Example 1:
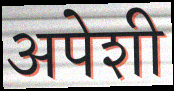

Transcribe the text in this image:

अपेशी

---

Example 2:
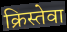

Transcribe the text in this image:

क्रिस्तेवा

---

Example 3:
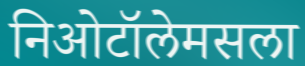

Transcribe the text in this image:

निओटॉलेमसला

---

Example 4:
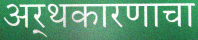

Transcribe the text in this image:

अर्थकारणाचा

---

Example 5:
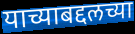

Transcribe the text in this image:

याच्याबद्दलच्या